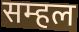
सम्हल